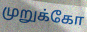
முறுக்கோ